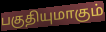
பகுதியுமாகும்